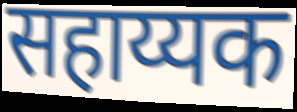
सहाय्यक